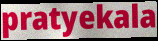
pratyekala